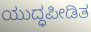
ಯುದ್ಧಪೀಡಿತ